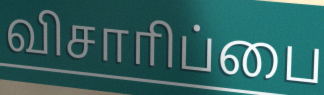
விசாரிப்பை